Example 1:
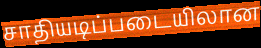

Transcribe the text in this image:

சாதியடிப்படையிலான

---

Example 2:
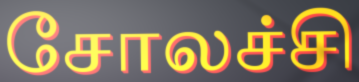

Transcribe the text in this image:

சோலச்சி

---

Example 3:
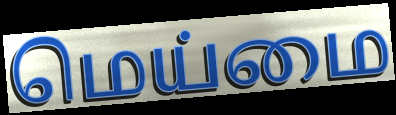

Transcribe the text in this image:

மெய்மை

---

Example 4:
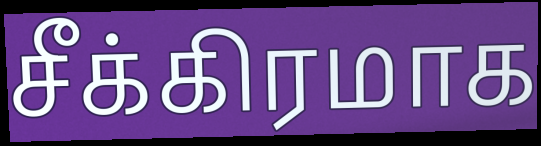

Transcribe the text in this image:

சீக்கிரமாக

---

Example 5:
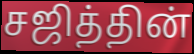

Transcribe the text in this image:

சஜித்தின்